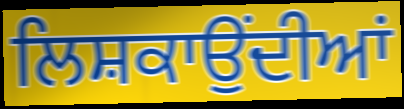
ਲਿਸ਼ਕਾਉਂਦੀਆਂ